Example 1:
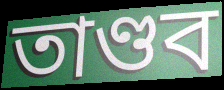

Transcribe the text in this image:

তাণ্ডব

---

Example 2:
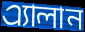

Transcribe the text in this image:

এ্যালান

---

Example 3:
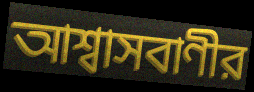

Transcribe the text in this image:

আশ্বাসবাণীর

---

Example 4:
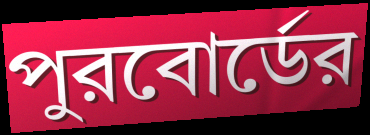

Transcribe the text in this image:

পুরবোর্ডের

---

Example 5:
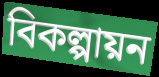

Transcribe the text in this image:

বিকল্পায়ন